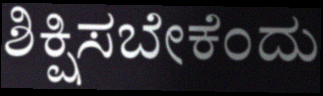
ಶಿಕ್ಷಿಸಬೇಕೆಂದು